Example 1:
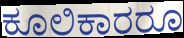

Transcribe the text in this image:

ಕೂಲಿಕಾರರೂ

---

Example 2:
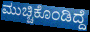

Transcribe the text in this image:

ಮುಚ್ಚಿಕೊಂಡಿದ್ದೆ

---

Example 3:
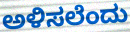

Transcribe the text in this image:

ಅಳಿಸಲೆಂದು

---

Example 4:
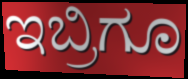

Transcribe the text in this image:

ಇಬ್ರಿಗೂ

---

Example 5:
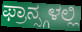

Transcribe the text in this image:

ಫ್ರಾನ್ಸ್ಗಳಲ್ಲಿ